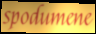
spodumene